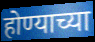
होण्याच्या